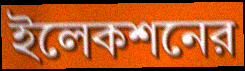
ইলেকশনের